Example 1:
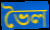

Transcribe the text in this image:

ভৈল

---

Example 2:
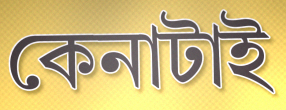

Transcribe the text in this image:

কেনাটাই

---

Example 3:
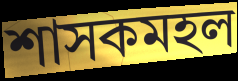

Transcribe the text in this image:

শাসকমহল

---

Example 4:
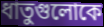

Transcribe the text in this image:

ধাতুগুলোকে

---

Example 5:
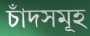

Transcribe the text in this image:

চাঁদসমূহ